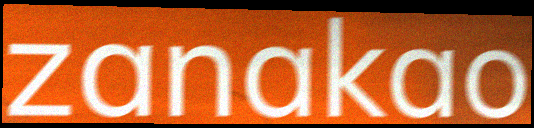
zanakao